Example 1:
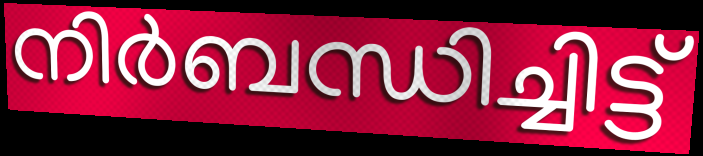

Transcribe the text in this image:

നിർബന്ധിച്ചിട്ട്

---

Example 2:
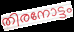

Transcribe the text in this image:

തിരനോട്ടം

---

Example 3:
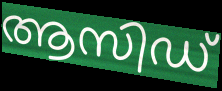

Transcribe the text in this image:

ആസിഡ്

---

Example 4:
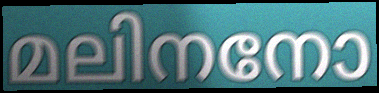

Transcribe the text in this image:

മലിനനോ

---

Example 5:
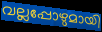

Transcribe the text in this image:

വല്ലപ്പോഴുമായി